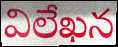
విలేఖన